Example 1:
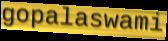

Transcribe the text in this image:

gopalaswami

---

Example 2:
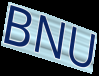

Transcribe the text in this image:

BNU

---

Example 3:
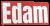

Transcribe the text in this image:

Edam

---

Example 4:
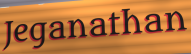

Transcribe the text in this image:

Jeganathan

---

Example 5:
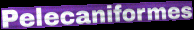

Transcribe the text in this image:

Pelecaniformes